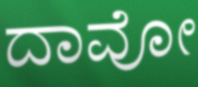
ದಾವೋ